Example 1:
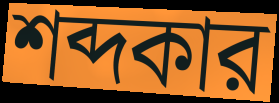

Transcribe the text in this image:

শব্দকার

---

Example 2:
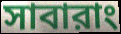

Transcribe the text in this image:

সাবারাং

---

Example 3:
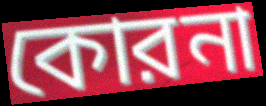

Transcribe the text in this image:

কোরনা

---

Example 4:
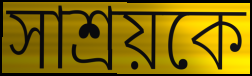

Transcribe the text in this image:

সাশ্রয়কে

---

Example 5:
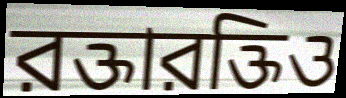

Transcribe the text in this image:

রক্তারক্তিও